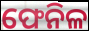
ଫେନିଳ